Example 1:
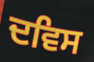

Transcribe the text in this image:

ਦਵਿਸ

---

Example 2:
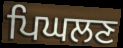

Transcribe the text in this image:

ਪਿਘਲਣ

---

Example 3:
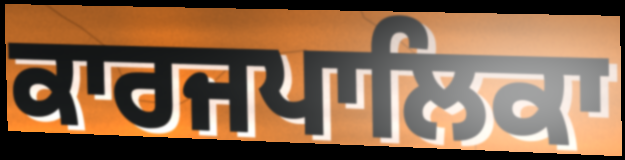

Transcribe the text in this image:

ਕਾਰਜਪਾਲਿਕਾ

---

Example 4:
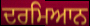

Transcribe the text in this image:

ਦਰਮਿਆਨ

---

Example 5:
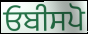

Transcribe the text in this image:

ਓਬੀਸਪੋ